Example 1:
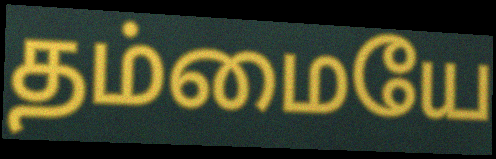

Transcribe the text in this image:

தம்மையே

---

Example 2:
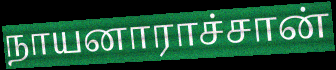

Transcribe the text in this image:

நாயனாராச்சான்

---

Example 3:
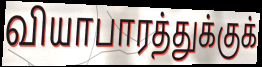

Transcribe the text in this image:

வியாபாரத்துக்குக்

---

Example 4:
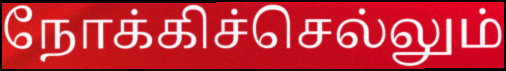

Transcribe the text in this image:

நோக்கிச்செல்லும்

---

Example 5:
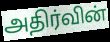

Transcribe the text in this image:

அதிர்வின்